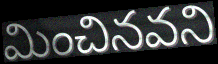
మించినవని